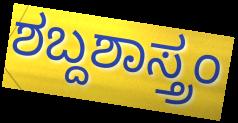
ಶಬ್ದಶಾಸ್ತ್ರಂ